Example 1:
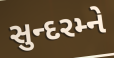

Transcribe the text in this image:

સુન્દરમ્ને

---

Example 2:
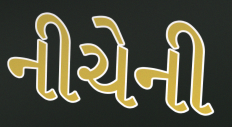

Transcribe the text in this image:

નીચેની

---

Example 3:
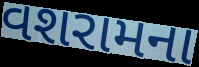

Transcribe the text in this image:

વશરામના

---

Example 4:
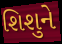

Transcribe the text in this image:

શિશુને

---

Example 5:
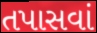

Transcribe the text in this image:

તપાસવાં